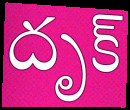
దృక్